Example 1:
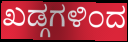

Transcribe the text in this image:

ಖಡ್ಗಗಳಿಂದ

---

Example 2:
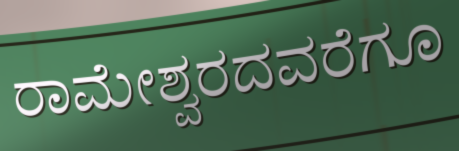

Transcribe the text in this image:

ರಾಮೇಶ್ವರದವರೆಗೂ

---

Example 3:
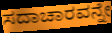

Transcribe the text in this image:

ಸದಾಚಾರವನ್ನೇ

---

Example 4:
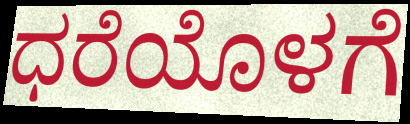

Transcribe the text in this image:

ಧರೆಯೊಳಗೆ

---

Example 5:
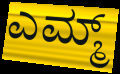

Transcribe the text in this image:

ಎಮ್ಮ್